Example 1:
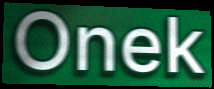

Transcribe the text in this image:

Onek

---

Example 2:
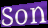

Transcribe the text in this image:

Son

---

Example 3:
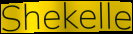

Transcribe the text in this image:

Shekelle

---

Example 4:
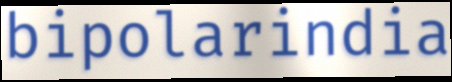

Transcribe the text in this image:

bipolarindia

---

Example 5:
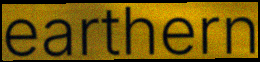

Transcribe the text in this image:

earthern